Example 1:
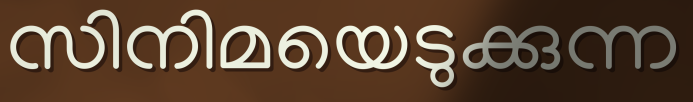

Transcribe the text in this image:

സിനിമയെടുക്കുന്ന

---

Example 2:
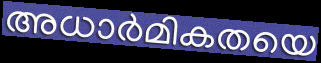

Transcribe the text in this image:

അധാർമികതയെ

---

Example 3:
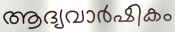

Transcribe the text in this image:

ആദ്യവാർഷികം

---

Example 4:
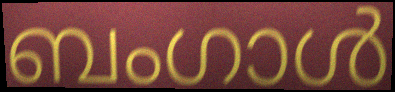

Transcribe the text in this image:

ബംഗാൾ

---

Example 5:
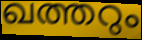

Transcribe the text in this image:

ഖത്തറും